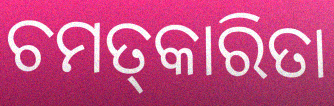
ଚମତ୍‌କାରିତା